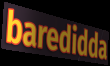
baredidda